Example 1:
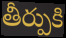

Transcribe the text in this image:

తీర్పుకి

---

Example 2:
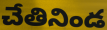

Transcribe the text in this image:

చేతినిండ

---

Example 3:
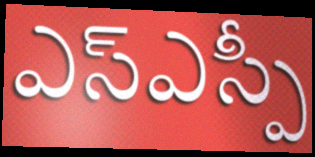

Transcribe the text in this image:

ఎస్ఎస్పీ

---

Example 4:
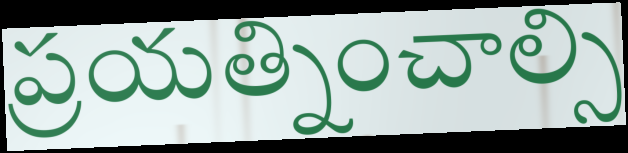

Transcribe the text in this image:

ప్రయత్నించాల్సి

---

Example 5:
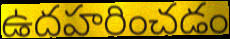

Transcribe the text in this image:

ఉదహరించడం